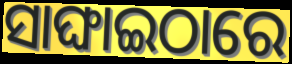
ସାଙ୍ଘାଇଠାରେ